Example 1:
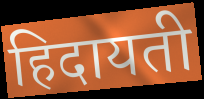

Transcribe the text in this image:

हिदायती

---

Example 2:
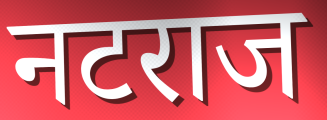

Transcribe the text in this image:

नटराज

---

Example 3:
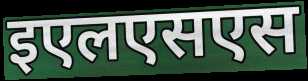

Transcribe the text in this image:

इएलएसएस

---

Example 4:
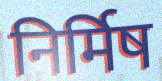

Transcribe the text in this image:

निर्मिष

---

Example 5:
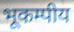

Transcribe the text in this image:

भूकम्पीय